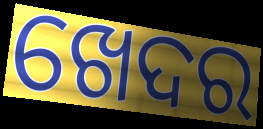
ଖେଦର